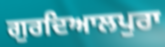
ਗੁਰਦਿਆਲਪੁਰਾ